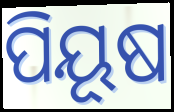
ପିୟୂଷ